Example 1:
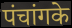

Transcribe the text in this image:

पंचांगके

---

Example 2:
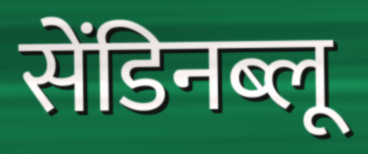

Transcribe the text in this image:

सेंडिनब्लू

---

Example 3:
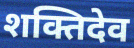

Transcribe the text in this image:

शक्तिदेव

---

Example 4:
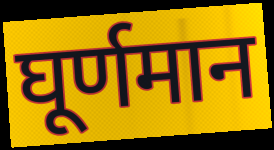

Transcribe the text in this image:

घूर्णमान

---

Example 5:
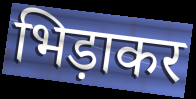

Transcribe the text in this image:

भिड़ाकर